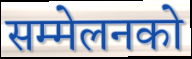
सम्मेलनको